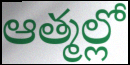
ఆత్మల్లో